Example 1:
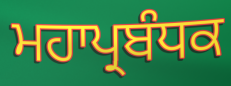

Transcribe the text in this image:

ਮਹਾਪ੍ਰਬੰਧਕ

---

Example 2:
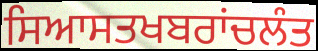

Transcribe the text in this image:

ਸਿਆਸਤਖਬਰਾਂਚਲੰਤ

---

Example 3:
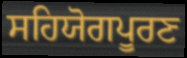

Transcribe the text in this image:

ਸਹਿਯੋਗਪੂਰਣ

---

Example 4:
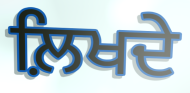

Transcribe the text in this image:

ਲ਼ਿਖਦੇ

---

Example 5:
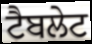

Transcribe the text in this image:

ਟੈਬਲੇਟ